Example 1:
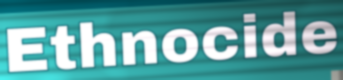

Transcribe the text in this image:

Ethnocide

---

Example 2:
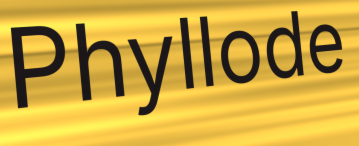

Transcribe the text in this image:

Phyllode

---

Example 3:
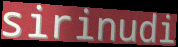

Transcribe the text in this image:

sirinudi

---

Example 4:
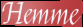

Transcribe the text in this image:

Hemme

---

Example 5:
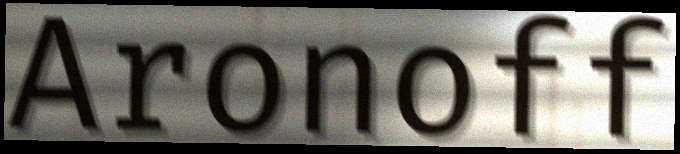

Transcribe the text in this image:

Aronoff